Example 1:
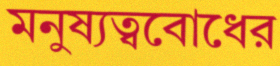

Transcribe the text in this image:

মনুষ্যত্ববোধের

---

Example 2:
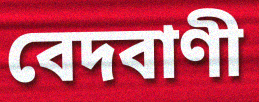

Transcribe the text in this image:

বেদবাণী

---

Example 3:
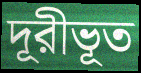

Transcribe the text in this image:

দূরীভূত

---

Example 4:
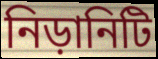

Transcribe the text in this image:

নিড়ানিটি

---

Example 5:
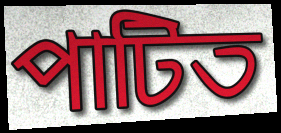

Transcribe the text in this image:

পাটিত